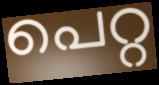
പെറ്റ